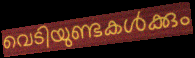
വെടിയുണ്ടകൾക്കും